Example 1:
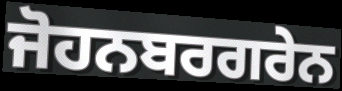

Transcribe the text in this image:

ਜੋਹਨਬਰਗਰੇਨ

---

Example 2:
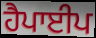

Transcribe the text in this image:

ਹੈਪਾਈਪ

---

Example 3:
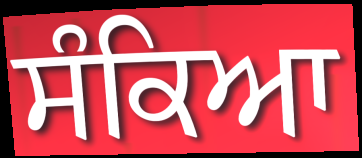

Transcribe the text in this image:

ਸੰਕਿਆ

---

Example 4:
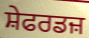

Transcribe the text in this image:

ਸ਼ੇਫਰਡਜ਼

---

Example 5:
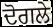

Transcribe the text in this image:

ਦੋਗਲੇ